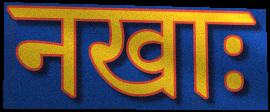
नखाः